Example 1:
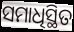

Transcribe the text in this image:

ସମାଧିସ୍ଥିତ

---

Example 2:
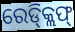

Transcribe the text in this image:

ରେଡ୍କ୍ଲିଫ୍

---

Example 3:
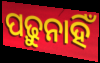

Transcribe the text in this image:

ପଢ଼ୁନାହିଁ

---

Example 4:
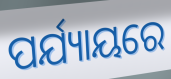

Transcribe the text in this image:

ପର୍ଯ୍ୟାୟରେ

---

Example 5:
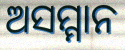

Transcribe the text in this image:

ଅସମ୍ମାନ